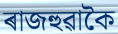
ৰাজহুৱাকৈ